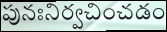
పునఃనిర్వచించడం